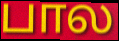
பால